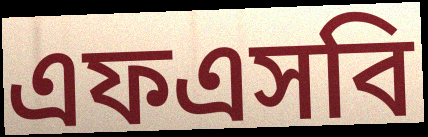
এফএসবি